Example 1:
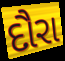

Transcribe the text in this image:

દૌરા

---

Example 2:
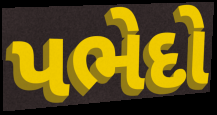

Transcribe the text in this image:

પભેદો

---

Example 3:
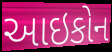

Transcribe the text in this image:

આઇકોન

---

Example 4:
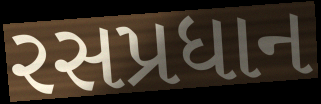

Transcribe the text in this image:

રસપ્રધાન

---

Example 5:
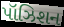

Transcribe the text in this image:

પૉઝિશન